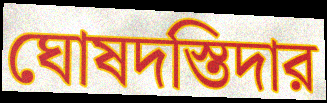
ঘোষদস্তিদার